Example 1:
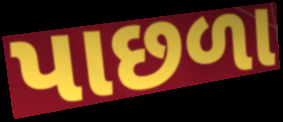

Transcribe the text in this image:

પાછળા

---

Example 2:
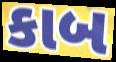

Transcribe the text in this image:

કાબ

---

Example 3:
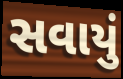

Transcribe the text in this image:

સવાયું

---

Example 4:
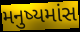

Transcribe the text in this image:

મનુષ્યમાંસ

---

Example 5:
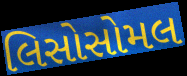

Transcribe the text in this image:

લિસોસોમલ